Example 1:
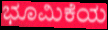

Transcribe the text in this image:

ಭೂಮಿಕೆಯ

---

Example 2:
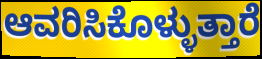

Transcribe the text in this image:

ಆವರಿಸಿಕೊಳ್ಳುತ್ತಾರೆ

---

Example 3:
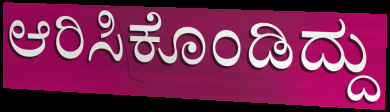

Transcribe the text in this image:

ಆರಿಸಿಕೊಂಡಿದ್ದು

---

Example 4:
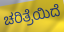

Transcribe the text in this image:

ಚರಿತ್ರೆಯಿದೆ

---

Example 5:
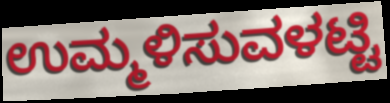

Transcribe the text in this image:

ಉಮ್ಮಳಿಸುವಳಟ್ಟಿ